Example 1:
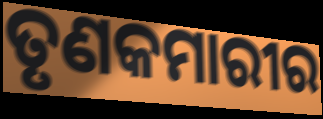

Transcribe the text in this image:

ତୃଣକମାରୀର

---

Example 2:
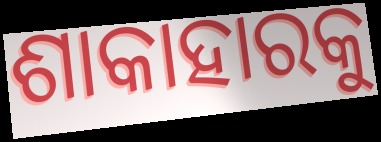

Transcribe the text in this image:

ଶାକାହାରକୁ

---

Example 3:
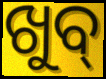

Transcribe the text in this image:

ଖୁବ୍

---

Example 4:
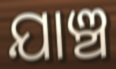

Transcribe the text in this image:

ଯାଞ୍ଚ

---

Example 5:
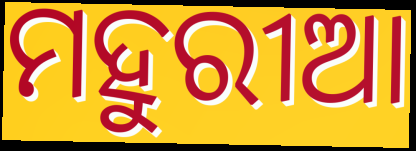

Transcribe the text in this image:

ମହୁରୀଆ